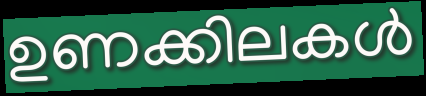
ഉണക്കിലകൾ